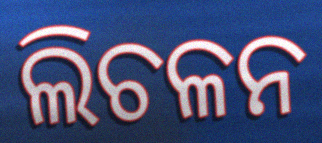
ଲିଚଳନ